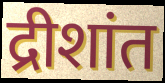
द्रीशांत